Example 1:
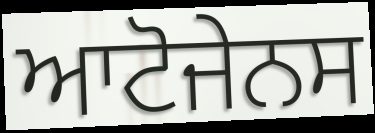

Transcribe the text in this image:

ਆਟੋਜੇਨਸ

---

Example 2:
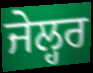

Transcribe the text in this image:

ਜੇਲ੍ਹਰ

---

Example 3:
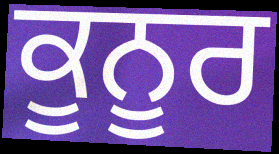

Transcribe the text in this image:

ਕੂਨੂਰ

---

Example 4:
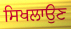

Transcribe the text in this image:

ਸਿਖਲਾਉਣ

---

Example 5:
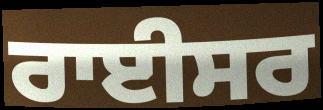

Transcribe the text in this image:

ਰਾਈਸਰ